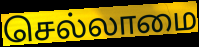
செல்லாமை